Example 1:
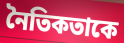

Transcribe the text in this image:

নৈতিকতাকে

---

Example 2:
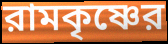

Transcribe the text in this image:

রামকৃষ্ণের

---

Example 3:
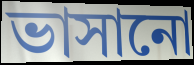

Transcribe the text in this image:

ভাসানো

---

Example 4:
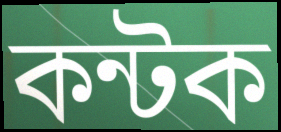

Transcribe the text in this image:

কন্টক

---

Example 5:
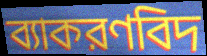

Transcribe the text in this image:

ব্যাকরণবিদ